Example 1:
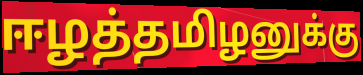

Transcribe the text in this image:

ஈழத்தமிழனுக்கு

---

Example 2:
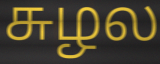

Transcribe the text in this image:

சுழல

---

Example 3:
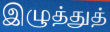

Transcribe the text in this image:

இழுத்துத்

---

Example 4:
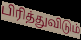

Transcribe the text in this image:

பிரித்துவிடும்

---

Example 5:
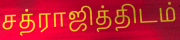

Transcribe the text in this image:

சத்ராஜித்திடம்